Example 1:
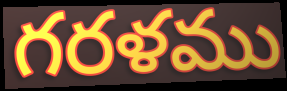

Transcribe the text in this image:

గరళము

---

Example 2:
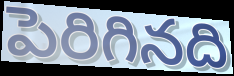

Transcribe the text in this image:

పెరిగినది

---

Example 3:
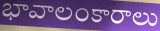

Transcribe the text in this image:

భావాలంకారాలు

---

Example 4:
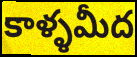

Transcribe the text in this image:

కాళ్ళమీద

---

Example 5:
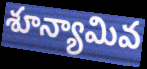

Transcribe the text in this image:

శూన్యామివ